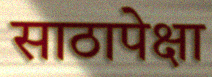
साठापेक्षा